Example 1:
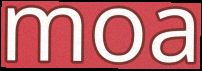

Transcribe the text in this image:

moa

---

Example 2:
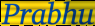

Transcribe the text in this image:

Prabhu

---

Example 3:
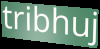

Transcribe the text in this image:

tribhuj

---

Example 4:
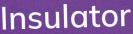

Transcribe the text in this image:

Insulator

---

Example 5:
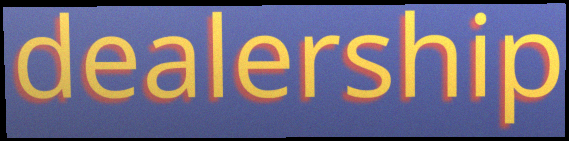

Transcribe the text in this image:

dealership